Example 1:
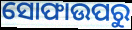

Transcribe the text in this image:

ସୋଫାଉପରୁ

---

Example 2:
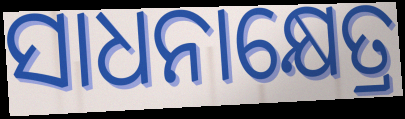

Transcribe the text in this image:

ସାଧନାକ୍ଷେତ୍ର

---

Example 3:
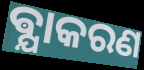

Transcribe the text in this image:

ଵ୍ଯାକରଣ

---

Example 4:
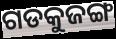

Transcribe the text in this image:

ଗଡକୁଜଙ୍ଗ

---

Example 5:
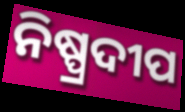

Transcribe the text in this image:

ନିଷ୍ପ୍ରଦୀପ